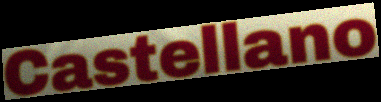
Castellano